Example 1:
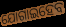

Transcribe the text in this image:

ଯୋଗାଇହେବ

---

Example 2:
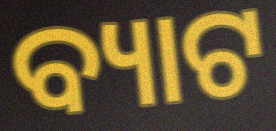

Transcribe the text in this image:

ବ୍ୟାଟ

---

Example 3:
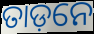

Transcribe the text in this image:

ତାଡ଼ନେ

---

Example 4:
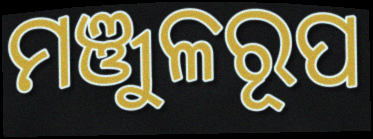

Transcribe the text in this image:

ମଞ୍ଜୁଳରୂପ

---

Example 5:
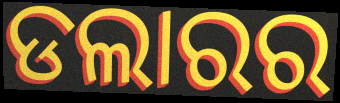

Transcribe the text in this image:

ଡଲାରର